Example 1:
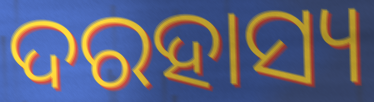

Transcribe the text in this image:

ଦରହାସ୍ୟ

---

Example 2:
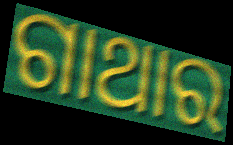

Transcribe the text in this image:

ଗାଥାର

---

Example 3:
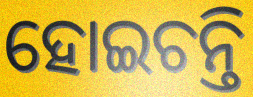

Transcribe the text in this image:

ହୋଇଚନ୍ତି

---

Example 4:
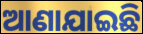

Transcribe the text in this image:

ଆଣାଯାଇଛି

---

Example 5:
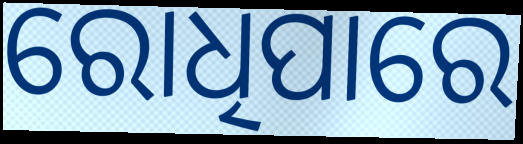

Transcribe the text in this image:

ରୋଧିପାରେ